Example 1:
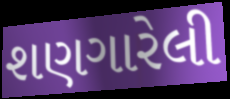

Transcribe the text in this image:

શણગારેલી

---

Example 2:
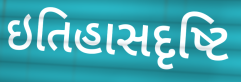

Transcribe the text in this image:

ઇતિહાસદૃષ્ટિ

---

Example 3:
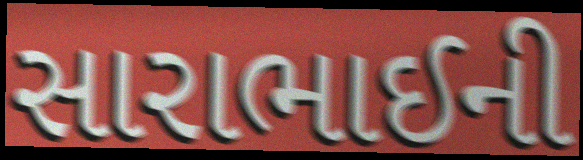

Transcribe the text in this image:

સારાભાઈની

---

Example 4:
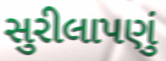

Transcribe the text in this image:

સુરીલાપણું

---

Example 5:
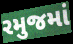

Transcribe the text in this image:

રમુજમાં